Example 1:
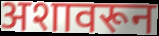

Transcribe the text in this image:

अशावरून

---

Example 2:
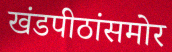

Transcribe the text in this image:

खंडपीठांसमोर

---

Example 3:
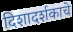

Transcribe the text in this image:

दिशादर्शकाचे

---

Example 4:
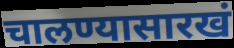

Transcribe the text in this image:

चालण्यासारखं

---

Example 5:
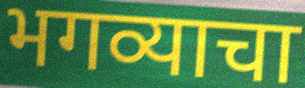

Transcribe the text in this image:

भगव्याचा